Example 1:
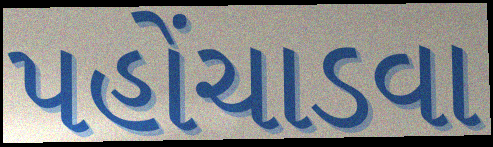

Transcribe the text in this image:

પહોંચાડવા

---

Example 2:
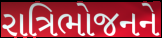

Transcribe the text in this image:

રાત્રિભોજનને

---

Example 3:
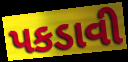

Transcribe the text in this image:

પકડાવી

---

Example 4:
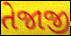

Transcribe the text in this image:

તેજાજી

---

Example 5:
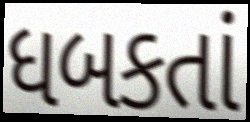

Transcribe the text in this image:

ધબકતાં